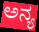
ಅನ್ಯ